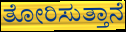
ತೋರಿಸುತ್ತಾನೆ